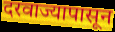
दरवाज्यापासून